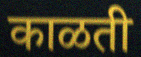
काळती